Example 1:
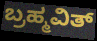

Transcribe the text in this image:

ಬ್ರಹ್ಮವಿತ್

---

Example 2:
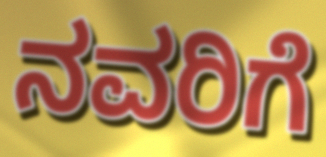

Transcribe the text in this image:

ನವರಿಗೆ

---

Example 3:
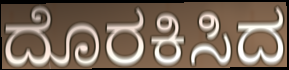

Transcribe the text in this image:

ದೊರಕಿಸಿದ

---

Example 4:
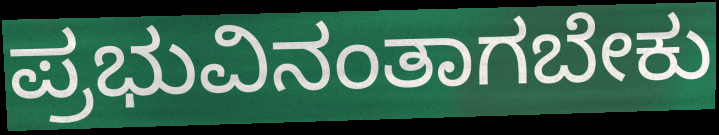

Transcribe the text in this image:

ಪ್ರಭುವಿನಂತಾಗಬೇಕು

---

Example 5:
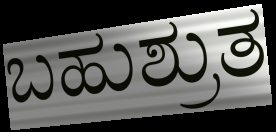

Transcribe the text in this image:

ಬಹುಶ್ರುತ